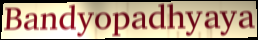
Bandyopadhyaya